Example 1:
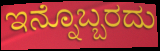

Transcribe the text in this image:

ಇನ್ನೊಬ್ಬರದು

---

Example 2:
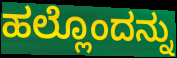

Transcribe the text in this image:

ಹಲ್ಲೊಂದನ್ನು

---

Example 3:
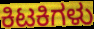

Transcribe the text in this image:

ಕಿಟಕಿಗಳು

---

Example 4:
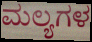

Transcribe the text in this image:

ಮಲ್ಯಗಳ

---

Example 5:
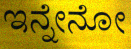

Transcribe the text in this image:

ಇನ್ನೇನೋ